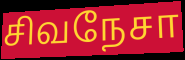
சிவநேசா